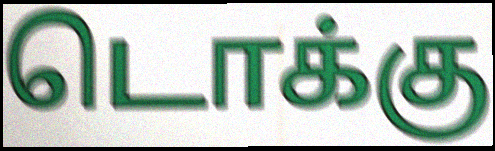
டொக்கு